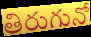
తిరుగునో